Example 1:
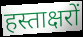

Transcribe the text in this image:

हस्ताक्षरों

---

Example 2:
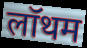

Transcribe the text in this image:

लॉथम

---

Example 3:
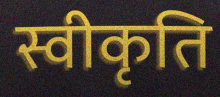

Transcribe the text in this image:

स्वीकृति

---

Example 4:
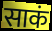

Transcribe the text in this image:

साकं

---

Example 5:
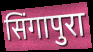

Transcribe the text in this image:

सिंगापुरा